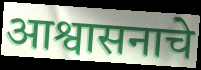
आश्वासनाचे